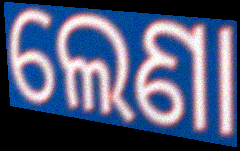
ଲେଣା